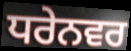
ਧਰੇਨਵਰ